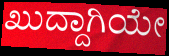
ಖುದ್ದಾಗಿಯೇ